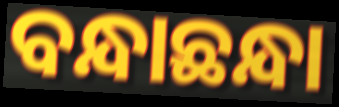
ବନ୍ଧାଛନ୍ଧା